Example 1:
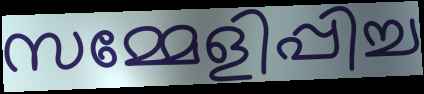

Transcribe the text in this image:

സമ്മേളിപ്പിച്ച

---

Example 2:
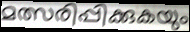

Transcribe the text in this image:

മത്സരിപ്പിക്കുകയും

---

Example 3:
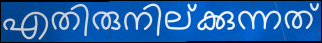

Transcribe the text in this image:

എതിരുനില്ക്കുന്നത്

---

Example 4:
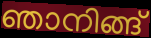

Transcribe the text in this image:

ഞാനിങ്ങ്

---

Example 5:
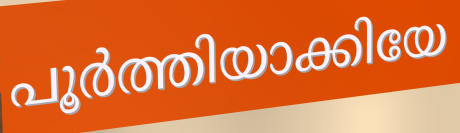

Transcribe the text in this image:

പൂർത്തിയാക്കിയേ